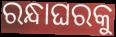
ରନ୍ଧାଘରକୁ